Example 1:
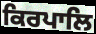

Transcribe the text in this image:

ਕਿਰਪਾਲਿ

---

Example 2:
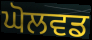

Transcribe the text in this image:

ਘੋਲਵਡ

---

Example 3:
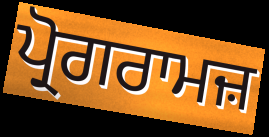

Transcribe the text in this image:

ਪ੍ਰੋਗਰਾਮਜ਼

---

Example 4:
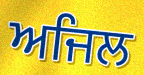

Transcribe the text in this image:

ਅਜਿਲ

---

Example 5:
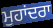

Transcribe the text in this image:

ਮੁਹਾਂਦਰਾ